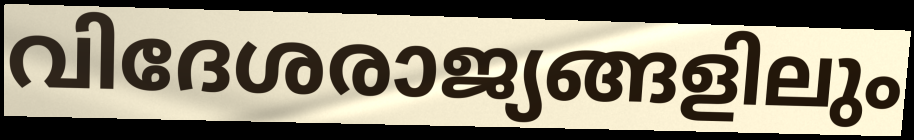
വിദേശരാജ്യങ്ങളിലും